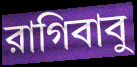
রাগিবাবু